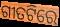
ଗୀତଟିରେ